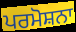
ਪਰਮੋਸ਼ਨਾ